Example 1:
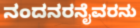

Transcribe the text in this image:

ನಂದನರನೈವರನು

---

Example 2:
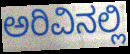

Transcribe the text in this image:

ಅರಿವಿನಲ್ಲಿ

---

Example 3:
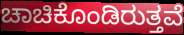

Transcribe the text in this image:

ಚಾಚಿಕೊಂಡಿರುತ್ತವೆ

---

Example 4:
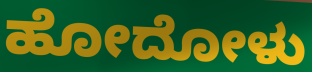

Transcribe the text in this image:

ಹೋದೋಳು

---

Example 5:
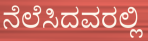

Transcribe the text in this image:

ನೆಲೆಸಿದವರಲ್ಲಿ